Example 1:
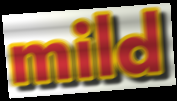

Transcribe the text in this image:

mild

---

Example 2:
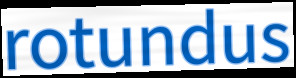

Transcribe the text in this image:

rotundus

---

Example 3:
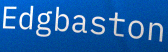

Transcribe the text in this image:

Edgbaston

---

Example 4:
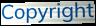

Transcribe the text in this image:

Copyright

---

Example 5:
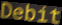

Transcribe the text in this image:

Debit